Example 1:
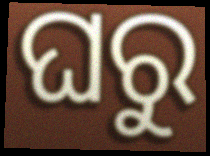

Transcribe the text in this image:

ଘରୁ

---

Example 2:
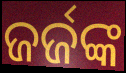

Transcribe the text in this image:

ଜର୍ଜଙ୍କ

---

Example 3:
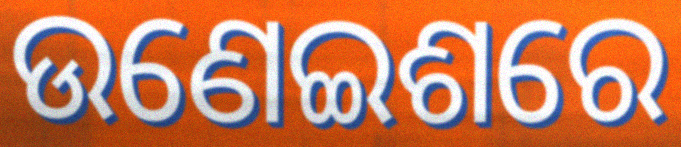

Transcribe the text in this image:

ଉଣେଇଶରେ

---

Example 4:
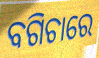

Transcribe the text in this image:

ବଗିଚାରେ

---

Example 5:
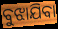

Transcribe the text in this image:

ବୁଝାଯିବା